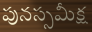
పునస్సమీక్ష